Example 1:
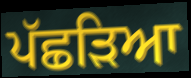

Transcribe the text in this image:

ਪੱਛੜਿਆ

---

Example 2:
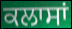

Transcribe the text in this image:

ਕਲਾਸਾਂ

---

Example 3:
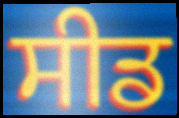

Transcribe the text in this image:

ਸੀਡ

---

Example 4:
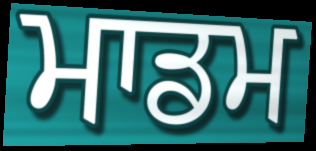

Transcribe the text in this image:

ਮਾਡਮ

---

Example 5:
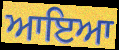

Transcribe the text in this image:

ਆਇਆ